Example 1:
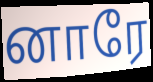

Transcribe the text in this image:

னாரே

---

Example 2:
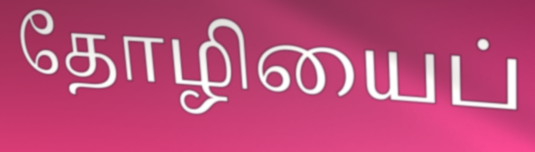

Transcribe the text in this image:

தோழியைப்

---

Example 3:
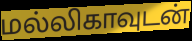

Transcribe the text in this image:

மல்லிகாவுடன்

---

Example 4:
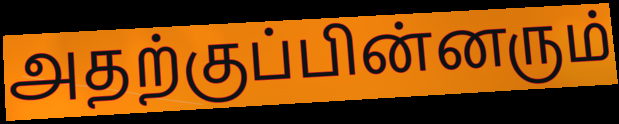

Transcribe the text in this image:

அதற்குப்பின்னரும்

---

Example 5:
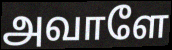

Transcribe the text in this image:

அவாளே